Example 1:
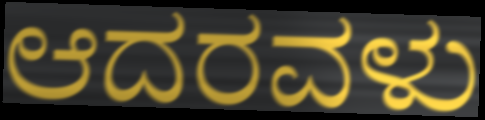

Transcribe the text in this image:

ಆದರವಳು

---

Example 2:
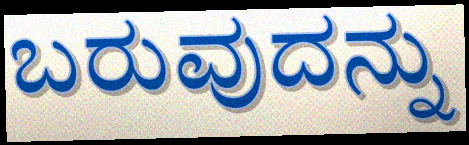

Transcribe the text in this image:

ಬರುವುದನ್ನು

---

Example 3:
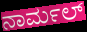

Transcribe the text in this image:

ನಾರ್ಮಲ್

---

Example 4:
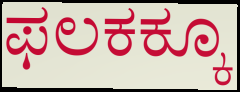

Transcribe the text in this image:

ಫಲಕಕ್ಕೂ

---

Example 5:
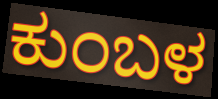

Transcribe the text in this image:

ಕುಂಬಳ